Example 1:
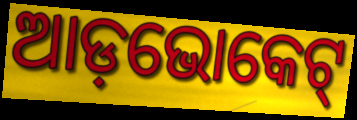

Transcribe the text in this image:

ଆଡ଼ଭୋକେଟ୍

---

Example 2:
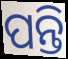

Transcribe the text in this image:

ପନ୍ତି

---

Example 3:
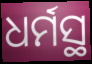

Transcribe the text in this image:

ଧର୍ମସ୍ଥ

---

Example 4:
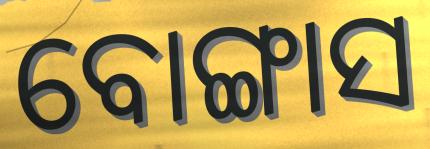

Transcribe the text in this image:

ବୋଙ୍ଗାସ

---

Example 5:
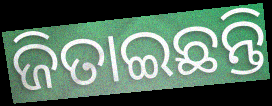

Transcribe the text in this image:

ଜିତାଇଛନ୍ତି